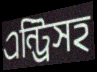
এন্ট্রিসহ